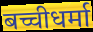
बच्चीधर्मा